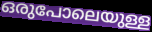
ഒരുപോലെയുള്ള